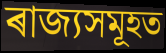
ৰাজ্যসমূহত